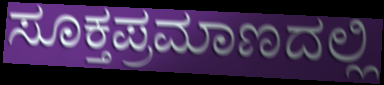
ಸೂಕ್ತಪ್ರಮಾಣದಲ್ಲಿ